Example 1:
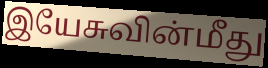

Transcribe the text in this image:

இயேசுவின்மீது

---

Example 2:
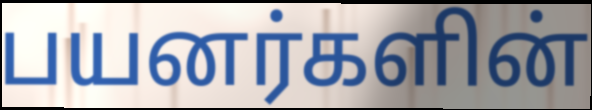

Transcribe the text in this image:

பயனர்களின்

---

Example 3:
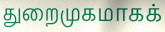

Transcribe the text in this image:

துறைமுகமாகக்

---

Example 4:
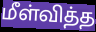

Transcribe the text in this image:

மீள்வித்த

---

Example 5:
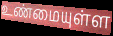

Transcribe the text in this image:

உண்மையுள்ள